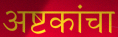
अष्टकांचा